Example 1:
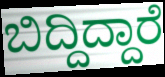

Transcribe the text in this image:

ಬಿದ್ದಿದ್ದಾರೆ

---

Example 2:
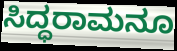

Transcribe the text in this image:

ಸಿದ್ಧರಾಮನೂ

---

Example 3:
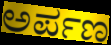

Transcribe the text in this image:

ಅರ್ಪಣ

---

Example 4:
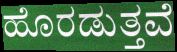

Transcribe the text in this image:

ಹೊರಡುತ್ತವೆ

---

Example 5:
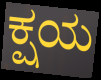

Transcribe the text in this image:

ಕ್ಷಯ